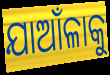
ଯାଆଁଳାକୁ